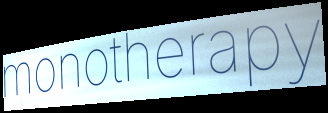
monotherapy